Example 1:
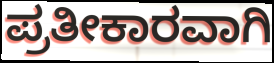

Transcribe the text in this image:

ಪ್ರತೀಕಾರವಾಗಿ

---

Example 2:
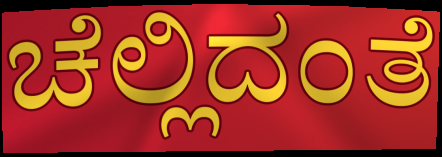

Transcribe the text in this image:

ಚೆಲ್ಲಿದಂತೆ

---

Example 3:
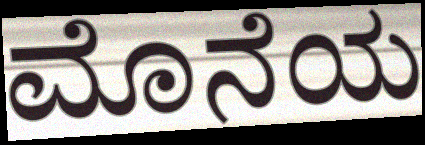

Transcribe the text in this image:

ಮೊನೆಯ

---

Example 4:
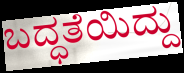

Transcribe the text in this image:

ಬದ್ಧತೆಯಿದ್ದು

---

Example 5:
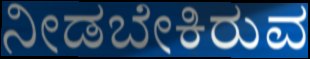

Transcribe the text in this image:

ನೀಡಬೇಕಿರುವ